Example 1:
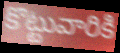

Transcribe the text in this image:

కొట్టువారికి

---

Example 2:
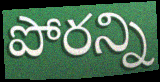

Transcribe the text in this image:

పోరన్ని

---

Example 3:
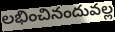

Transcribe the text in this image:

లభించినందువల్ల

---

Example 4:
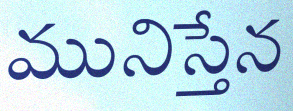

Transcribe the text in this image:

మునిస్తేన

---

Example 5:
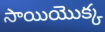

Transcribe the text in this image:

సాయియొక్క